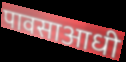
पावसाआधी